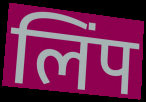
लिंप